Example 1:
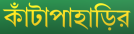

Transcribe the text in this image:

কাঁটাপাহাড়ির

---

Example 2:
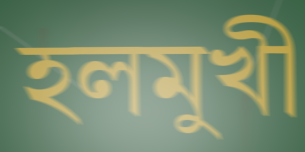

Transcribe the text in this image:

হলমুখী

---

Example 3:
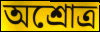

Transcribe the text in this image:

অশ্রোত্র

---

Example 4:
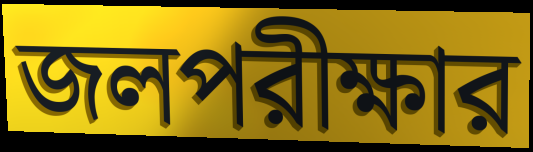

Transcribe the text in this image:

জলপরীক্ষার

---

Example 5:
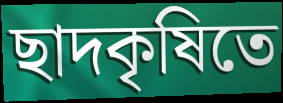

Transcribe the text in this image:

ছাদকৃষিতে